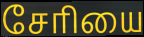
சேரியை